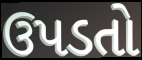
ઉપડતો